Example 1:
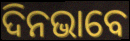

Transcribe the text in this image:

ଦିନଭାବେ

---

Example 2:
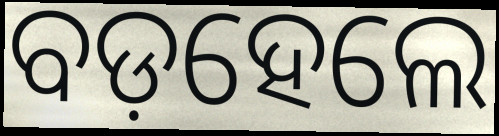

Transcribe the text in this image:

ବଡ଼ହେଲେ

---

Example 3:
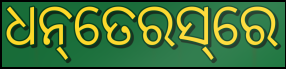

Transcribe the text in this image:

ଧନ୍‌ତେରସ୍‌ରେ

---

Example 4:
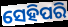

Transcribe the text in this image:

ସେହିପରି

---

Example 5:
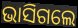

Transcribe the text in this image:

ଭାସିଗଲେ